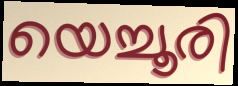
യെച്ചൂരി